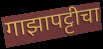
गाझापट्टीचा